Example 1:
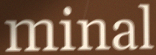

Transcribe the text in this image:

minal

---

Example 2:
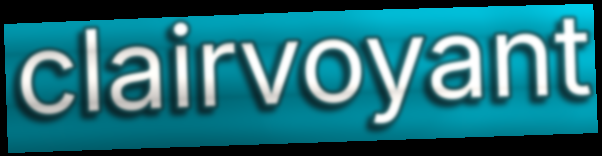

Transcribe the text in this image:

clairvoyant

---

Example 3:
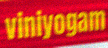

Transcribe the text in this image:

viniyogam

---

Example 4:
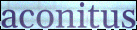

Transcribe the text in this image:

aconitus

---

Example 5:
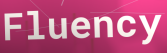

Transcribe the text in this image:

Fluency